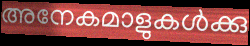
അനേകമാളുകൾക്കു